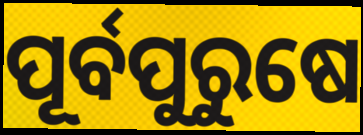
ପୂର୍ବପୁରୁଷେ